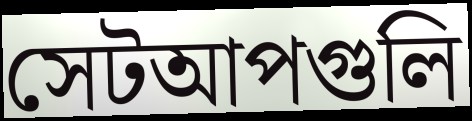
সেটআপগুলি